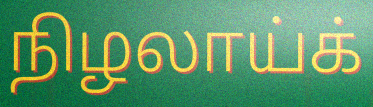
நிழலாய்க்